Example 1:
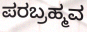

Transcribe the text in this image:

ಪರಬ್ರಹ್ಮವ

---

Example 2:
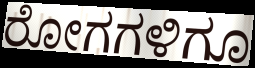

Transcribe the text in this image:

ರೋಗಗಳಿಗೂ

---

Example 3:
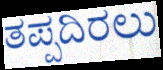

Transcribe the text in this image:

ತಪ್ಪದಿರಲು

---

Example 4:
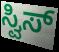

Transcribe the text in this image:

ಸ್ವಿಸ್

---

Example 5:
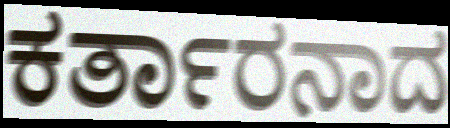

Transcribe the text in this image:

ಕರ್ತಾರನಾದ